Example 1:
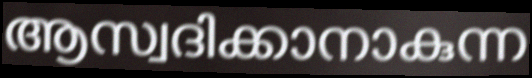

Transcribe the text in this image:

ആസ്വദിക്കാനാകുന്ന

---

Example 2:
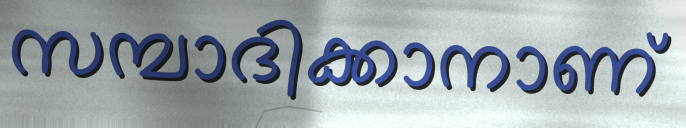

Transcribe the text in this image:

സമ്പാദിക്കാനാണ്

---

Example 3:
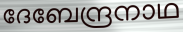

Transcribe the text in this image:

ദേബേന്ദ്രനാഥ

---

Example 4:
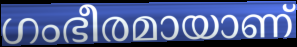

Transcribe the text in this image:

ഗംഭീരമായാണ്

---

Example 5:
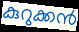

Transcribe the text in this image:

കുറുക്കൻ